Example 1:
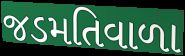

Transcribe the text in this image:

જડમતિવાળા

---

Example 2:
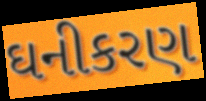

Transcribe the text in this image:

ઘનીકરણ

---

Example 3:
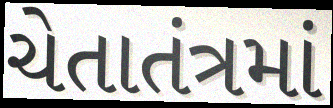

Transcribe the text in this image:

ચેતાતંત્રમાં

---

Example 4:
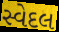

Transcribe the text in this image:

સ્વેદલ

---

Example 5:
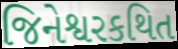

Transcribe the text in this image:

જિનેશ્વરકથિત